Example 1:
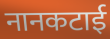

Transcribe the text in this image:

नानकटाई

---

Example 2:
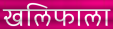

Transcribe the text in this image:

खलिफाला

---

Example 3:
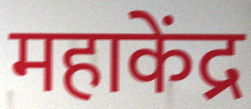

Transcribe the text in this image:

महाकेंद्र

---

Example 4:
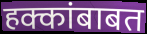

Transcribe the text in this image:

हक्कांबाबत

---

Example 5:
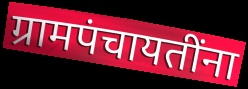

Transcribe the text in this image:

ग्रामपंचायतींना